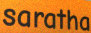
saratha